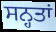
ਸਨ੍ਹਤਾਂ